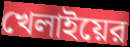
খেলাইয়ের